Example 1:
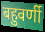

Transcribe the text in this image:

बहुवर्णी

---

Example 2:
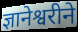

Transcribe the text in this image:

ज्ञानेश्वरीने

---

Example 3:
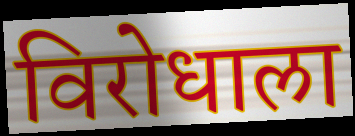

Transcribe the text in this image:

विरोधाला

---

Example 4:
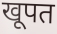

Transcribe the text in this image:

खूपत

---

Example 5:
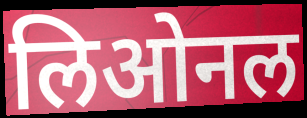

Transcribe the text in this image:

लिओनल